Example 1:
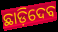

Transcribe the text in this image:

ଛାଡ଼ିଦେବ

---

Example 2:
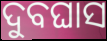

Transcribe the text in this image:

ଦୁବଘାସ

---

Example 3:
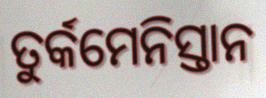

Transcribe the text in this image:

ତୁର୍କମେନିସ୍ତାନ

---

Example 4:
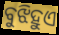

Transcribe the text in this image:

ବୁଝିହୁଏ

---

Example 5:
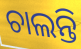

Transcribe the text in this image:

ଚାଲନ୍ତି